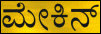
ಮೇಕಿನ್